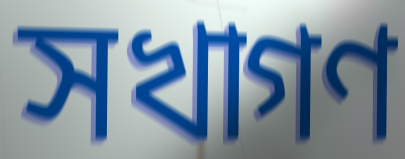
সখাগণ